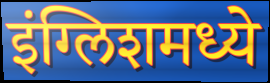
इंग्लिशमध्ये